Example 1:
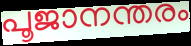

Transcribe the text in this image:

പൂജാനന്തരം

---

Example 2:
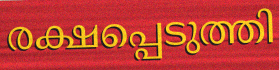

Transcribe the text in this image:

രക്ഷപ്പെടുത്തി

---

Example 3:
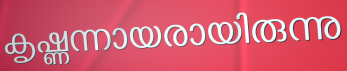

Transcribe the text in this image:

കൃഷ്ണന്നായരായിരുന്നു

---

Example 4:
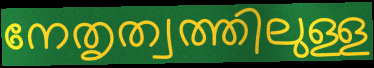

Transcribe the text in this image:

നേതൃത്വത്തിലുള്ള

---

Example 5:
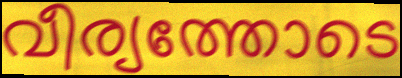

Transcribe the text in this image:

വീര്യത്തോടെ